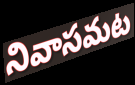
నివాసమట